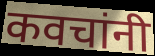
कवचांनी